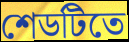
শেডটিতে